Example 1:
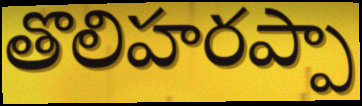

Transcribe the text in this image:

తొలిహరప్పా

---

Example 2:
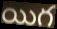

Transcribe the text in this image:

యిగ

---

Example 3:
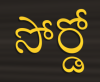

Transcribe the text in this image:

సోర్డో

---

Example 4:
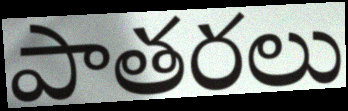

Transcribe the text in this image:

పాతరలు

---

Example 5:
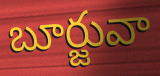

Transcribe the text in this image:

బూర్జువా